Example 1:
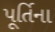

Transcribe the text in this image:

પૂર્તિના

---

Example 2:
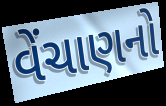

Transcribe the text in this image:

વેંચાણનો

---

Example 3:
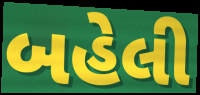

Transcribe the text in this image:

બહેલી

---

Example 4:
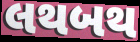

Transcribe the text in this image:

લથબથ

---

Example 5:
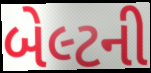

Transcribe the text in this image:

બેલ્ટની